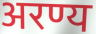
अरण्य